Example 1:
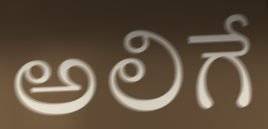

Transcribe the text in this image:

అలిగే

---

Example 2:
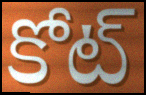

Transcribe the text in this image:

కోట్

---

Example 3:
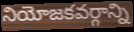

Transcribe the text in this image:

నియోజకవర్గాన్ని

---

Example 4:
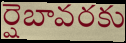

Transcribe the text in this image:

ర్షెబావరకు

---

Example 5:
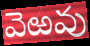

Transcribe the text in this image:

వెఱవు